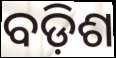
ବଡ଼ିଶ